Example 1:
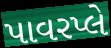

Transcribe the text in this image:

પાવરપ્લે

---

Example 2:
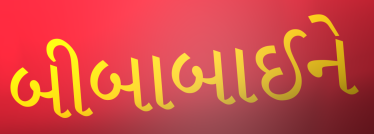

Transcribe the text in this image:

બીબાબાઈને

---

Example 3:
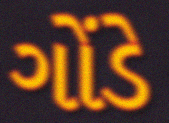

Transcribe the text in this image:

ગોંડે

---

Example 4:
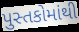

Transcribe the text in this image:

પુસ્તકોમાંથી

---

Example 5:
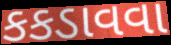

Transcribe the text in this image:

કકડાવવા